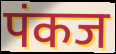
पंकज